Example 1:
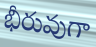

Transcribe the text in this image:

భీరువుగా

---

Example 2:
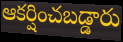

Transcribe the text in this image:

ఆకర్షించబడ్డారు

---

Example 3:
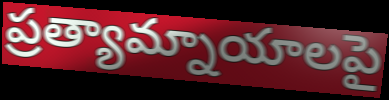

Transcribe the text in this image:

ప్రత్యామ్నాయాలపై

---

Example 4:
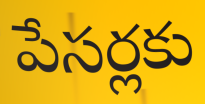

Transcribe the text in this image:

పేసర్లకు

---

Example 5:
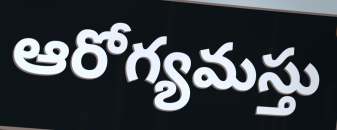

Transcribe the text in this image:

ఆరోగ్యమస్తు